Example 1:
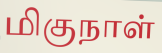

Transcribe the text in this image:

மிகுநாள்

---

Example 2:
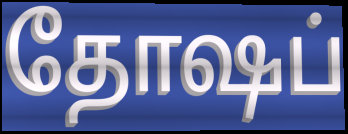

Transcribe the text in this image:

தோஷப்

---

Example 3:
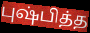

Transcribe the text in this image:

புஷ்பித்த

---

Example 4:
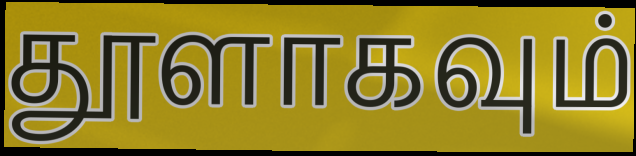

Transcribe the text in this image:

தூளாகவும்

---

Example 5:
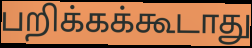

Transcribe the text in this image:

பறிக்கக்கூடாது